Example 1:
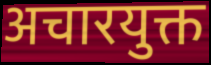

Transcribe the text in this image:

अचारयुक्त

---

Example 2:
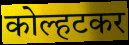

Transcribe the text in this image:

कोल्हटकर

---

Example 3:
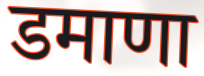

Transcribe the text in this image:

डमाणा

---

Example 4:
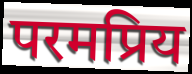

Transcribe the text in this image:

परमप्रिय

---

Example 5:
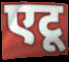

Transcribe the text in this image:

एटू